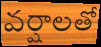
వర్షాలతో